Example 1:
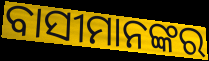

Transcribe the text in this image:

ବାସୀମାନଙ୍କର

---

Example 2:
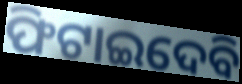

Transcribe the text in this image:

ଫିଟାଇଦେବି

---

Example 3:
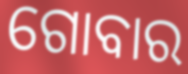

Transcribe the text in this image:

ଗୋବାର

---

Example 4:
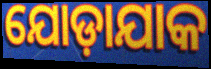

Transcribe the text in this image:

ଯୋଡ଼ାଯାକ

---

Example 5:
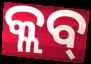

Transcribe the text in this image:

କ୍ଲବ୍